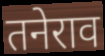
तनेराव